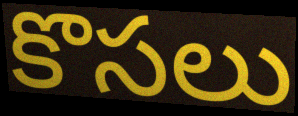
కొసలు